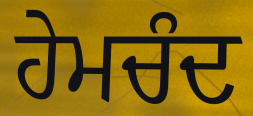
ਹੇਮਚੰਦ